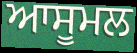
ਆਸੂਮਲ